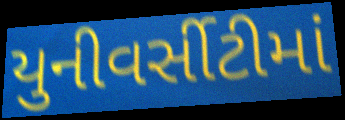
યુનીવર્સીટીમાં